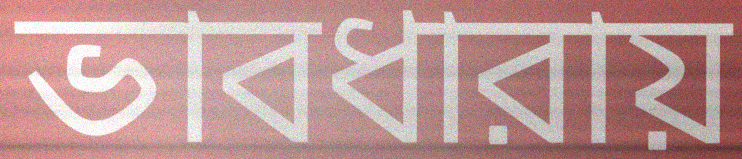
ভাবধারায়